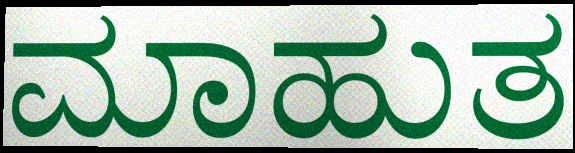
ಮಾಹುತ